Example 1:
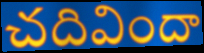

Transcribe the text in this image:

చదివిందా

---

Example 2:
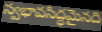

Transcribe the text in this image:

స్వభావసిద్ధమైనది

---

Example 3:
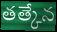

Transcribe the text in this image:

తత్కేన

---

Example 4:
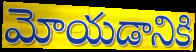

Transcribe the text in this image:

మోయడానికి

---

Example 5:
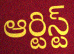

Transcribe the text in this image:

ఆర్టిస్ట్